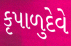
કૃપાળુદેવે